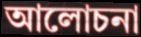
আলোচনা